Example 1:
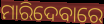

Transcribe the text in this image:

ମାରିଦେବାରେ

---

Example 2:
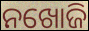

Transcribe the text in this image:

ନଖୋଜି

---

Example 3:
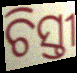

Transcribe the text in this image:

ଚିସ୍ତୀ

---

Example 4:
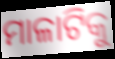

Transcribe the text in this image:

ମାଳାଟିକୁ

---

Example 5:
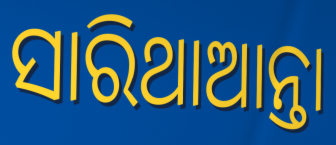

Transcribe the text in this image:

ସାରିଥାଆନ୍ତା